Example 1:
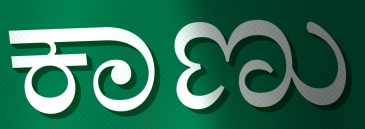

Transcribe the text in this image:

ಕಾಣು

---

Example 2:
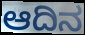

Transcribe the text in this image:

ಆದಿನ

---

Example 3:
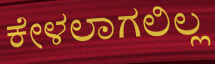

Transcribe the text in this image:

ಕೇಳಲಾಗಲಿಲ್ಲ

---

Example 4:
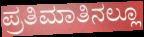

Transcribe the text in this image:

ಪ್ರತಿಮಾತಿನಲ್ಲೂ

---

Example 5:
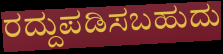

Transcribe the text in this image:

ರದ್ದುಪಡಿಸಬಹುದು